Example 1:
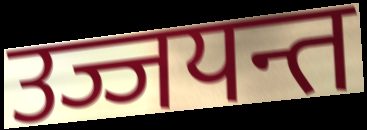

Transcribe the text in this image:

उज्जयन्त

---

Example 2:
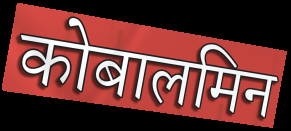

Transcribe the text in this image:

कोबालमिन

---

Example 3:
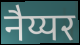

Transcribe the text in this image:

नैय्यर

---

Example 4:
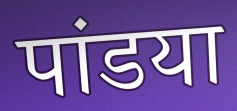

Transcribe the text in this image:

पांडया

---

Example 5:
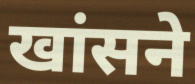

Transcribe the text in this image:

खांसने